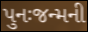
પુનઃજન્મની